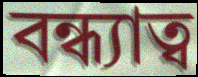
বন্ধ্যাত্ব